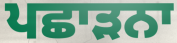
ਪਛਾੜਨਾ